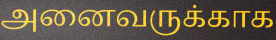
அனைவருக்காக